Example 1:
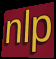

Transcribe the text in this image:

nlp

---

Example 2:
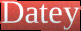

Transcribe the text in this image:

Datey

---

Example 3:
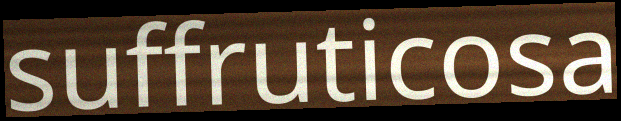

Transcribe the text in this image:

suffruticosa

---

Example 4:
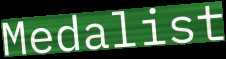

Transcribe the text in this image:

Medalist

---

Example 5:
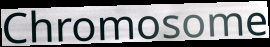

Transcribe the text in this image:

Chromosome